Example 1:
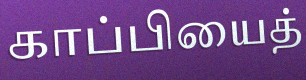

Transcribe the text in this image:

காப்பியைத்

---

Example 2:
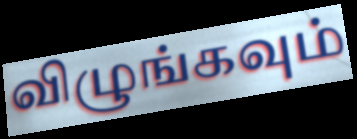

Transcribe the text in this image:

விழுங்கவும்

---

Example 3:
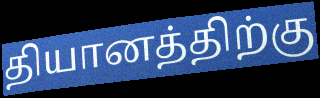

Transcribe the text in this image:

தியானத்திற்கு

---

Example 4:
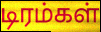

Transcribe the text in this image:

டிரம்கள்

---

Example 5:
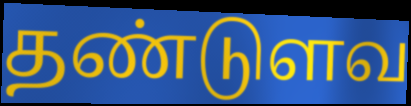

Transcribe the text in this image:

தண்டுளவ